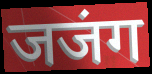
जजंग